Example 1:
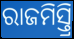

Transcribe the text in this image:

ରାଜମିସ୍ତ୍ରି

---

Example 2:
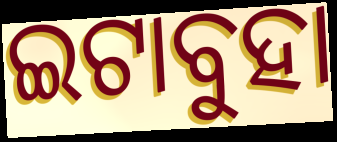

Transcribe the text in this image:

ଇଟାବୁହା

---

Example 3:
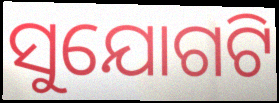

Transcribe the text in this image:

ସୁଯୋଗଟି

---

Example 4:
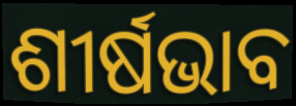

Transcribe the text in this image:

ଶୀର୍ଷଭାବ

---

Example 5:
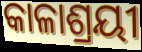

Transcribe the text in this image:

କାଳାଶ୍ରୟୀ